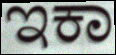
ಇಕಾ